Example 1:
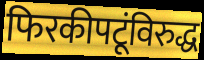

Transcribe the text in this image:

फिरकीपटूंविरुद्ध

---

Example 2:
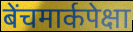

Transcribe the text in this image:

बेंचमार्कपेक्षा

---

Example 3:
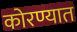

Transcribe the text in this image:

कोरण्यात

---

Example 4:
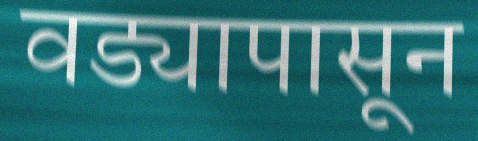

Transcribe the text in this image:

वड्यापासून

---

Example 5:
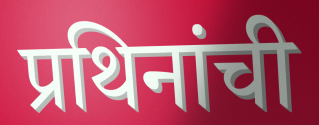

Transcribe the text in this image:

प्रथिनांची